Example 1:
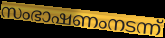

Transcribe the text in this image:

സംഭാഷണംനടന്ന്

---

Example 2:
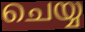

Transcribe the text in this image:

ചെയ്യ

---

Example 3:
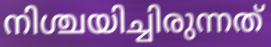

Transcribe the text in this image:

നിശ്ചയിച്ചിരുന്നത്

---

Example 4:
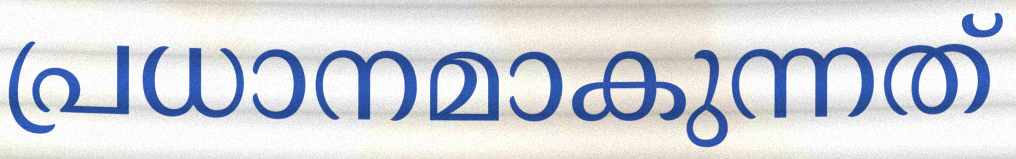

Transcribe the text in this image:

പ്രധാനമാകുന്നത്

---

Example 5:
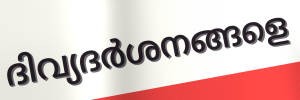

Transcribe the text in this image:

ദിവ്യദർശനങ്ങളെ